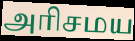
அரிசமய